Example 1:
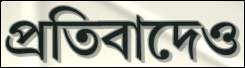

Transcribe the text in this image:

প্রতিবাদেও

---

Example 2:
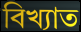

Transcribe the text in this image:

বিখ্যাত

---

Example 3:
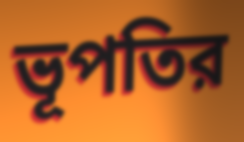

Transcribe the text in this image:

ভূপতির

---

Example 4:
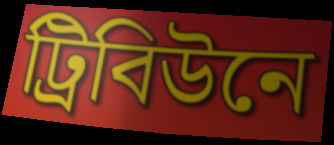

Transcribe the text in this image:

ট্রিবিউনে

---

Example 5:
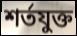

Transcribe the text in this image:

শর্তযুক্ত